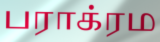
பராக்ரம